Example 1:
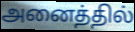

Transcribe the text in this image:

அனைத்தில்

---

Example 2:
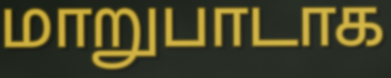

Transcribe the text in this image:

மாறுபாடாக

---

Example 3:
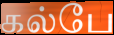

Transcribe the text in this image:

கல்பே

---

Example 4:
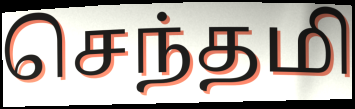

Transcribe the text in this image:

செந்தமி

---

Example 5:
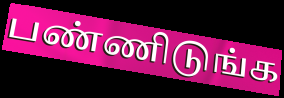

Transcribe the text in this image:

பண்ணிடுங்க